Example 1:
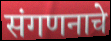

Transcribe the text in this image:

संगणनाचे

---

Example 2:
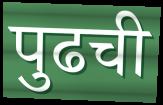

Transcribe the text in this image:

पुढची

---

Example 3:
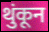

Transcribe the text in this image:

थुंकून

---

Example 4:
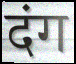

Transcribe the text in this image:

दंग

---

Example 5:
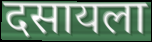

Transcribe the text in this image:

दसायला